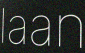
laan